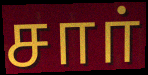
சார்